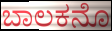
ಬಾಲಕನೊ